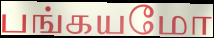
பங்கயமோ